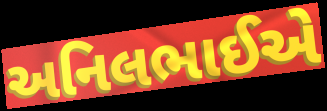
અનિલભાઈએ